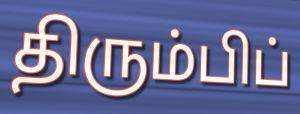
திரும்பிப்